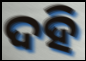
ଦହି